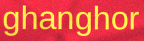
ghanghor